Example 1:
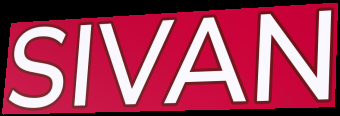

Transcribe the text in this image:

SIVAN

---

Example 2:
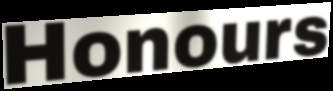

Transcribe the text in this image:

Honours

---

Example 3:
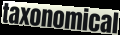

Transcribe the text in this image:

taxonomical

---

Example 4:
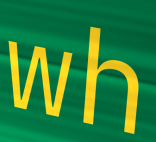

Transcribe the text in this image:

wh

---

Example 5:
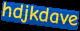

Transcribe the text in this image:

hdjkdave